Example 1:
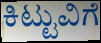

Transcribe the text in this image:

ಕಿಟ್ಟುವಿಗೆ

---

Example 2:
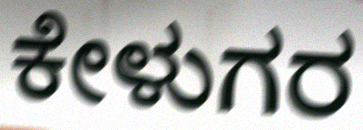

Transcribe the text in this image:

ಕೇಳುಗರ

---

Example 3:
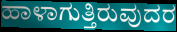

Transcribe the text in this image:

ಹಾಳಾಗುತ್ತಿರುವುದರ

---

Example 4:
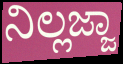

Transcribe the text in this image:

ನಿಲ್ಲಜ್ಜಾ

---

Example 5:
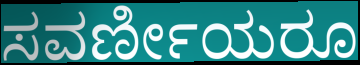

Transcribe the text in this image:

ಸವರ್ಣೀಯರೂ